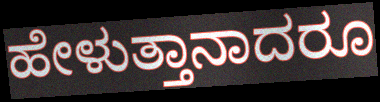
ಹೇಳುತ್ತಾನಾದರೂ